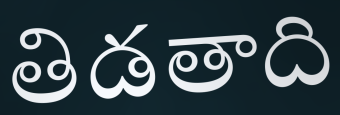
తిడతాది